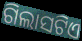
ଗିଲାସଟିଏ